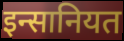
इन्सानियत